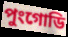
পুংগোডি